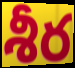
శీర